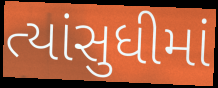
ત્યાંસુધીમાં